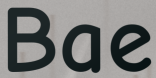
Bae